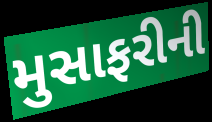
મુસાફરીની